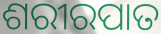
ଶରୀରପାତ